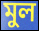
মুল